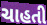
ચાહતી